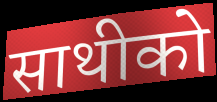
साथीको